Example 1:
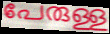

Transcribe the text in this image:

പേരുള്ള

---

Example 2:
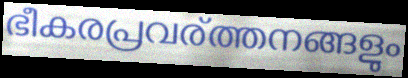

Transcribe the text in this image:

ഭീകരപ്രവര്ത്തനങ്ങളും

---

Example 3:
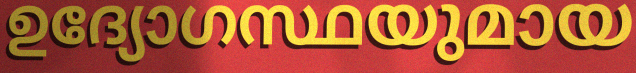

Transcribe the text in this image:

ഉദ്യോഗസ്ഥയുമായ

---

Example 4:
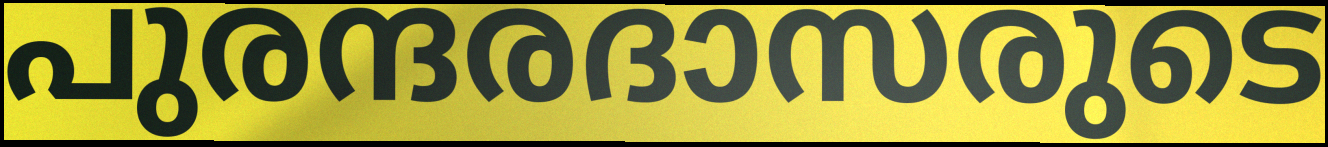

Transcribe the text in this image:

പുരന്ദരദാസരുടെ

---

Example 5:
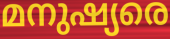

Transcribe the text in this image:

മനുഷ്യരെ